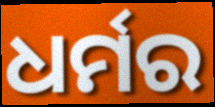
ଧର୍ମର